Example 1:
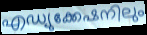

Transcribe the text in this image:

എഡ്യുക്കേഷനിലും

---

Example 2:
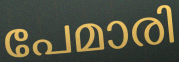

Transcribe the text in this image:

പേമാരി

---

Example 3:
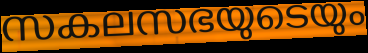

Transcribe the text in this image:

സകലസഭയുടെയും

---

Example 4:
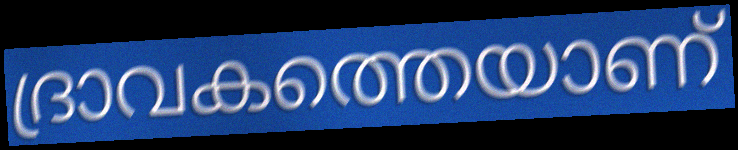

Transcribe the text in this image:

ദ്രാവകത്തെയാണ്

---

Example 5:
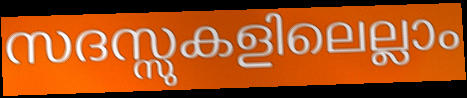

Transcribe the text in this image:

സദസ്സുകളിലെല്ലാം